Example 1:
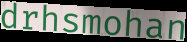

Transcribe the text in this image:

drhsmohan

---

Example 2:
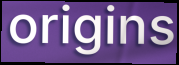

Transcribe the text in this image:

origins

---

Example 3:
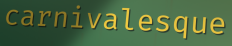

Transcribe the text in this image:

carnivalesque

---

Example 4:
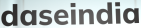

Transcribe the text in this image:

daseindia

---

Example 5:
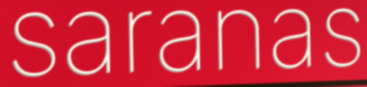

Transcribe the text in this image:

saranas